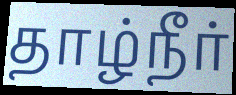
தாழ்நீர்